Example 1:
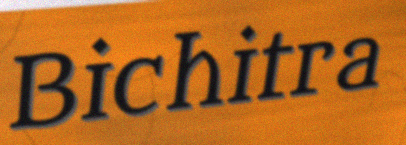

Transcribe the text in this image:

Bichitra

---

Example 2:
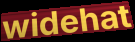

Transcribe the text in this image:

widehat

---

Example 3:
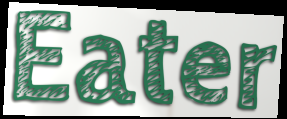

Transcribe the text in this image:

Eater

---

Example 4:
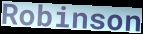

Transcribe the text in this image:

Robinson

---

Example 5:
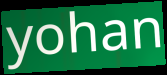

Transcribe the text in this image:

yohan